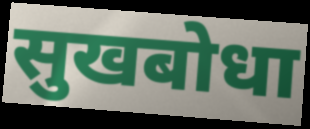
सुखबोधा